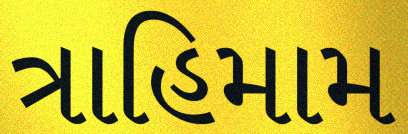
ત્રાહિમામ